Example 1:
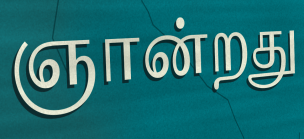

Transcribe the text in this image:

ஞான்றது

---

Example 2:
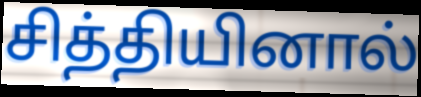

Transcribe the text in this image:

சித்தியினால்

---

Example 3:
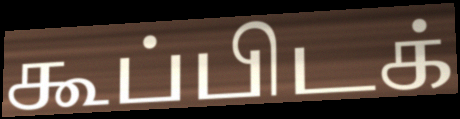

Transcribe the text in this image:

கூப்பிடக்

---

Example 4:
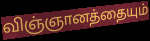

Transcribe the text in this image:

விஞ்ஞானத்தையும்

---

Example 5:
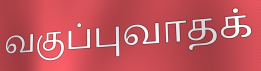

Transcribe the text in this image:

வகுப்புவாதக்